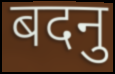
बदनु